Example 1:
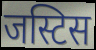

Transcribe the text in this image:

जस्टिस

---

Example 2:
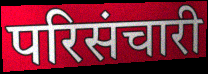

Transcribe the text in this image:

परिसंचारी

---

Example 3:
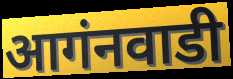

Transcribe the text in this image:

आगंनवाडी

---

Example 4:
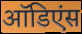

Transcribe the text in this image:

ऑडिएंस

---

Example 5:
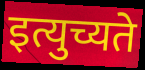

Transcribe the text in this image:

इत्युच्यते